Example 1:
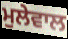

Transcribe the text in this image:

ਮੁਲੇਵਾਲ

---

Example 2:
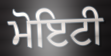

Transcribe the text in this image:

ਮੋਇਟੀ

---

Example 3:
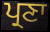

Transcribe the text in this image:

ਪ੍ਰਣਾ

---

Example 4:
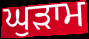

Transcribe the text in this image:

ਘੁੜਾਮ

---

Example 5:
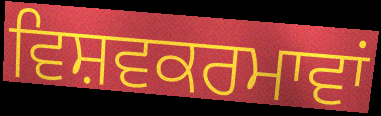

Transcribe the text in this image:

ਵਿਸ਼ਵਕਰਮਾਵਾਂ